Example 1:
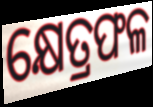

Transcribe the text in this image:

କ୍ଷେତ୍ରଫଳ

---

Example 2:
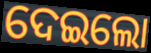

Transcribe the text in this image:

ଦେଇଲୋ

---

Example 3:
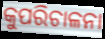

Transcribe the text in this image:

କୁପରିଚାଳନା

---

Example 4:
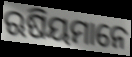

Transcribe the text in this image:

ଋଷିୟମାନେ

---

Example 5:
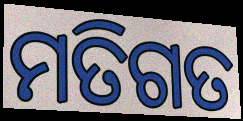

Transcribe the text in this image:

ମତିଗତ